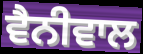
ਵੈਨੀਵਾਲ